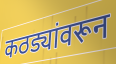
कठड्यांवरून